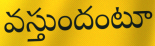
వస్తుందంటూ